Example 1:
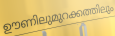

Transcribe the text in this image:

ഊണിലുമുറക്കത്തിലും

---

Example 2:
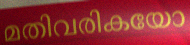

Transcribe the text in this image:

മതിവരികയോ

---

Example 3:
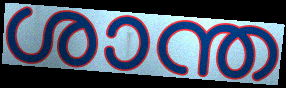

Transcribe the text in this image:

ശാന്ത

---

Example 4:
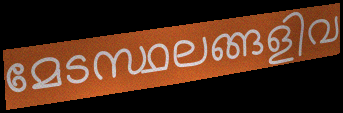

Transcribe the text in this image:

മേടസ്ഥലങ്ങളിവ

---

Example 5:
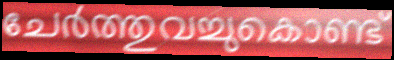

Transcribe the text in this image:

ചേർത്തുവച്ചുകൊണ്ട്